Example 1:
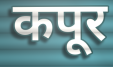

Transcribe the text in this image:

कपूर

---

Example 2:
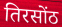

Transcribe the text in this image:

तिरसोंठ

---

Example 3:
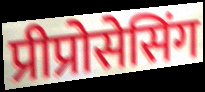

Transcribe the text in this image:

प्रीप्रोसेसिंग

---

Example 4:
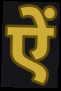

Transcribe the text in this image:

ऐं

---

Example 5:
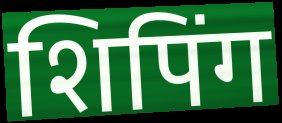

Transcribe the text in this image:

शिपिंग